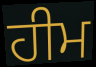
ਹੀਮ